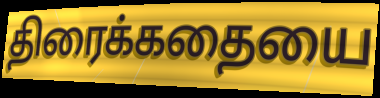
திரைக்கதையை